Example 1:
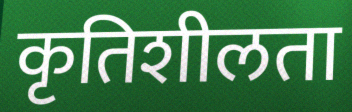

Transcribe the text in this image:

कृतिशीलता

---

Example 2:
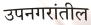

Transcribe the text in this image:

उपनगरांतील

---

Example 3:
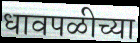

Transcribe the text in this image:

धावपळीच्या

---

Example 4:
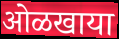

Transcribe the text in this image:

ओळखाया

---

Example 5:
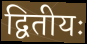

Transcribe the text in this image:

द्वितीयः